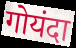
गोयंदा